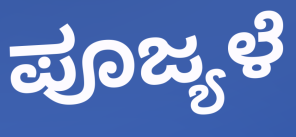
ಪೂಜ್ಯಳೆ